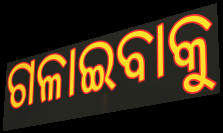
ଗଳାଇବାକୁ